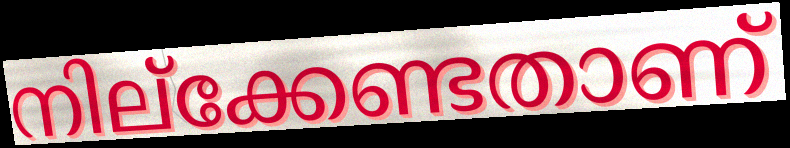
നില്ക്കേണ്ടതാണ്